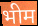
भीम